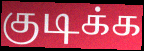
குடிக்க